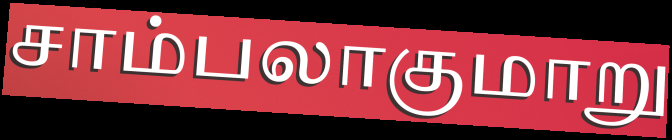
சாம்பலாகுமாறு